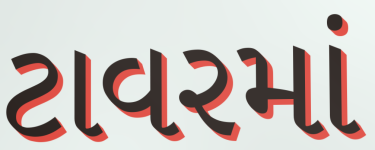
ટાવરમાં